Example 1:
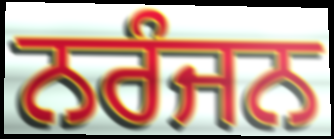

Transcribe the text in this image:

ਨਰੰਜਨ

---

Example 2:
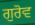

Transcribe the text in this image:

ਗੁਰੋਵ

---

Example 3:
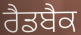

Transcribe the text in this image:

ਰੈਡਬੈਕ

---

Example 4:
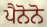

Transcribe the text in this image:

ਪੈਨੋਨੋ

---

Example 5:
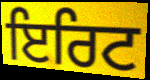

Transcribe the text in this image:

ਇਰਿਟ